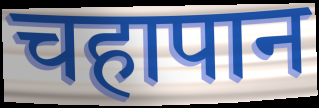
चहापान